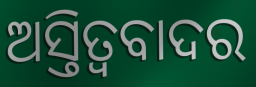
ଅସ୍ତିତ୍ବବାଦର